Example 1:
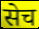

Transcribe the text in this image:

सेच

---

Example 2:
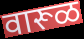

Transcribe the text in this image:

वारूळ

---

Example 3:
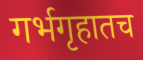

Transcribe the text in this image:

गर्भगृहातच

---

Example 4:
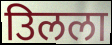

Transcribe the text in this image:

उिलला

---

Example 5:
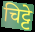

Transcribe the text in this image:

चिट्टे